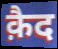
क़ैद